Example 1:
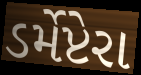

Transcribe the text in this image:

ડર્મેપ્ટેરા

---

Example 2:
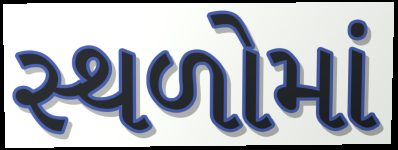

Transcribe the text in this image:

સ્‍થળોમાં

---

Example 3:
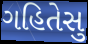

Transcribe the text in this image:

ગહિતેસુ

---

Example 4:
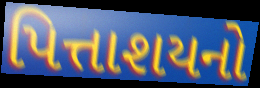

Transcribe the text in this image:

પિત્તાશયનો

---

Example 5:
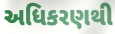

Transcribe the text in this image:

અધિકરણથી